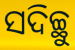
ସଦିଚ୍ଛୁ